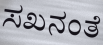
ಸಖನಂತೆ